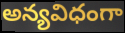
అన్యవిధంగా